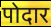
पोदार